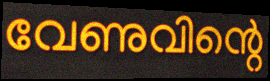
വേണുവിന്റെ